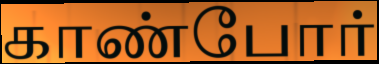
காண்போர்